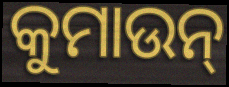
କୁମାଉନ୍